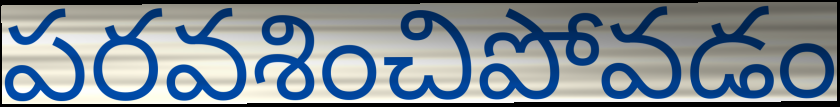
పరవశించిపోవడం